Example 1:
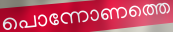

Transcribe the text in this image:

പൊന്നോണത്തെ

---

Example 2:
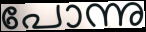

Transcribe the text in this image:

പോന്നു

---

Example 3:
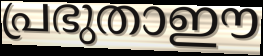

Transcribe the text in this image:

പ്രഭുതാഈ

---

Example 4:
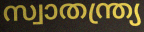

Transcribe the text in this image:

സ്വാതന്ത്ര്യ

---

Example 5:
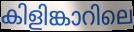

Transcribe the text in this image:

കിളിങ്കാറിലെ